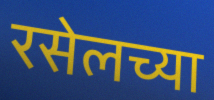
रसेलच्या